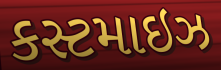
કસ્ટમાઇઝ